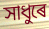
সাধুৰে